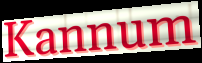
Kannum